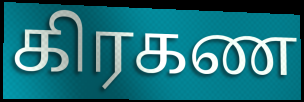
கிரகண